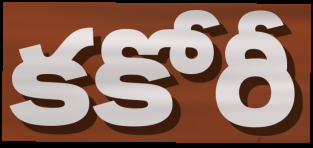
కకోరీ